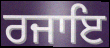
ਰਜਾਇ